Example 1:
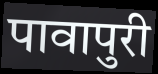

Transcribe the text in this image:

पावापुरी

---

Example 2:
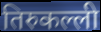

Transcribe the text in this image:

तिरुकल्ली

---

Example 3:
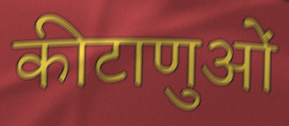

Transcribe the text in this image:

कीटाणुओं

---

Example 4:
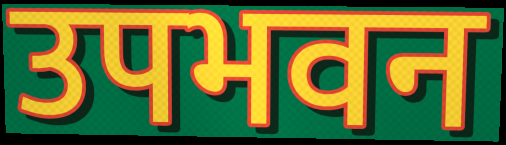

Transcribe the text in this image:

उपभवन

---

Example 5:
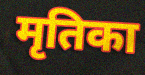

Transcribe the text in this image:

मृतिका